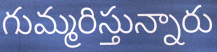
గుమ్మరిస్తున్నారు